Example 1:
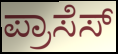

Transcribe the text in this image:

ಪ್ರಾಸೆಸ್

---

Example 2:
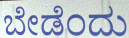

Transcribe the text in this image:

ಬೇಡೆಂದು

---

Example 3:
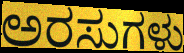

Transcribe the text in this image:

ಅರಸುಗಳು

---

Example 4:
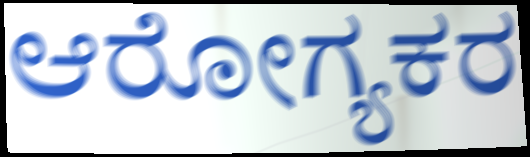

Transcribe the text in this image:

ಆರೋಗ್ಯಕರ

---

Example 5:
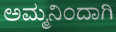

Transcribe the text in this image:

ಅಮ್ಮನಿಂದಾಗಿ